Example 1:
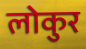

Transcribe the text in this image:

लोकुर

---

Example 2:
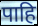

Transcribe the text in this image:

पाहि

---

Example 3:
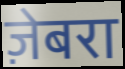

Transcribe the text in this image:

ज़ेबरा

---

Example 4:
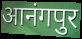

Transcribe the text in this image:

आनंगपुर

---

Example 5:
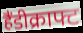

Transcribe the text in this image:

हैंडीक्राफ्ट